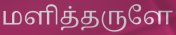
மளித்தருளே